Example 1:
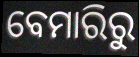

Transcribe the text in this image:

ବେମାରିରୁ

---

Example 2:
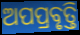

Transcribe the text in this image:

ଅପପ୍ରବୃତ୍ତି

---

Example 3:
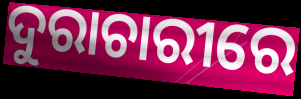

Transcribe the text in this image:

ଦୁରାଚାରୀରେ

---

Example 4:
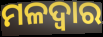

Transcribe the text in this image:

ମଳଦ୍ଵାର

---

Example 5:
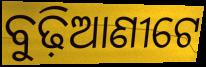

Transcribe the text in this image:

ବୁଢ଼ିଆଣୀଟେ